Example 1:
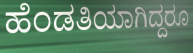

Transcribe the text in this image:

ಹೆಂಡತಿಯಾಗಿದ್ದರೂ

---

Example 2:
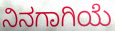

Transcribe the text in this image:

ನಿನಗಾಗಿಯೆ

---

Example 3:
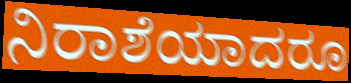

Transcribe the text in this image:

ನಿರಾಶೆಯಾದರೂ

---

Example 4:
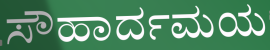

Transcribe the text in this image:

ಸೌಹಾರ್ದಮಯ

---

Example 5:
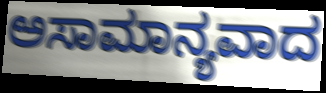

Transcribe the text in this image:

ಅಸಾಮಾನ್ಯವಾದ